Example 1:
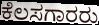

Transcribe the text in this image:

ಕೆಲಸಗಾರರು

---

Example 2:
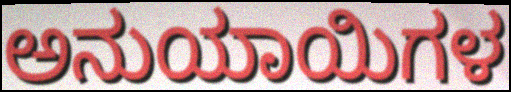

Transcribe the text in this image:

ಅನುಯಾಯಿಗಳ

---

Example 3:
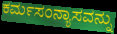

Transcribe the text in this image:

ಕರ್ಮಸಂನ್ಯಾಸವನ್ನು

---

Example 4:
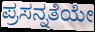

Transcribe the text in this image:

ಪ್ರಸನ್ನತೆಯೇ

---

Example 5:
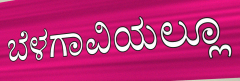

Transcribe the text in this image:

ಬೆಳಗಾವಿಯಲ್ಲೂ